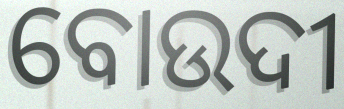
ବୋଉଦୀ